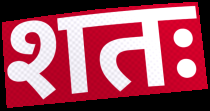
शतः